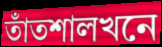
তাঁতশালখনে